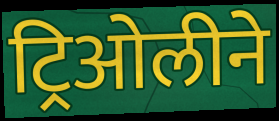
ट्रिओलीने